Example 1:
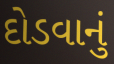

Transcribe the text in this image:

દોડવાનું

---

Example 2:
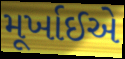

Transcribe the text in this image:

મૂર્ખાઈએ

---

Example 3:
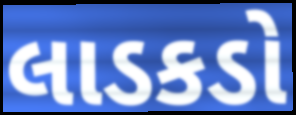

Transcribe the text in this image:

લાડકડો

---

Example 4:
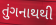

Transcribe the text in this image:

તુંગનાથથી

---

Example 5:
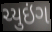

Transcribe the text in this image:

ચ્યુઇંગ